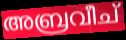
അബ്രവീച്